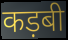
कड़बी